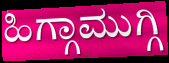
ಹಿಗ್ಗಾಮುಗ್ಗಿ